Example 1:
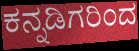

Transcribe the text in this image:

ಕನ್ನಡಿಗರಿಂದ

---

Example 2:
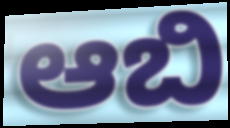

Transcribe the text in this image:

ಆಬಿ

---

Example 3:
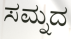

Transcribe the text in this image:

ಸಮ್ನದ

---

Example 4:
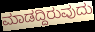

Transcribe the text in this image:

ಮಾಡದ್ದಿರುವುದು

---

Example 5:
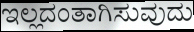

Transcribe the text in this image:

ಇಲ್ಲದಂತಾಗಿಸುವುದು